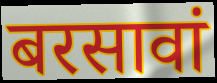
बरसावां